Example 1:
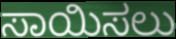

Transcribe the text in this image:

ಸಾಯಿಸಲು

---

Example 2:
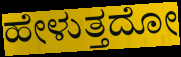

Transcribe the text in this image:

ಹೇಳುತ್ತದೋ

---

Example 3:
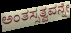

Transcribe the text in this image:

ಅಂತಸ್ಸತ್ವವನ್ನೇ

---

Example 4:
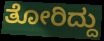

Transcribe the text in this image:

ತೋರಿದ್ದು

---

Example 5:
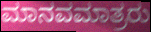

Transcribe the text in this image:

ಮಾನವಮಾತ್ರರು